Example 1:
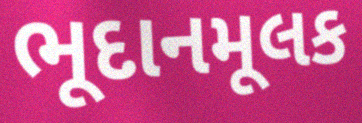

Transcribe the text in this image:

ભૂદાનમૂલક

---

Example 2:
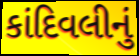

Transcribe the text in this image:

કાંદિવલીનું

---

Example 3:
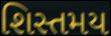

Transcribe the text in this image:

શિસ્તમય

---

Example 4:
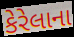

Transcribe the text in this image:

કેરેલાના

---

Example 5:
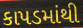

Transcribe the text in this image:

કાપડમાંથી